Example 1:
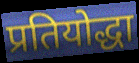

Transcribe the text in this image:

प्रतियोद्धा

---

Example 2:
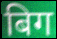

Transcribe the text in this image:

बिग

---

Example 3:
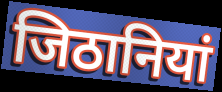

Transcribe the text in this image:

जिठानियां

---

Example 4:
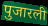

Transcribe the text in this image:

पुजारली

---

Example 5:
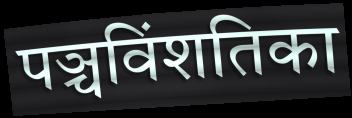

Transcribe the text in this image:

पञ्चविंशतिका